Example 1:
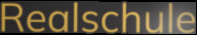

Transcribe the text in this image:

Realschule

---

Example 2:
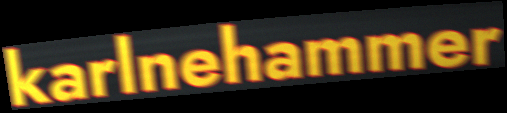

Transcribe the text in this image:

karlnehammer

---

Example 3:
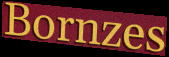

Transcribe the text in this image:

Bornzes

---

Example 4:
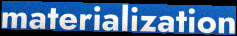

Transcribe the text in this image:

materialization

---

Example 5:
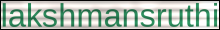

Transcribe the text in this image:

lakshmansruthi